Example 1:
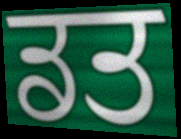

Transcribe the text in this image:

ਡਤ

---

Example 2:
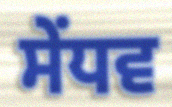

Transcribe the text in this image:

ਸੇਂਧਵ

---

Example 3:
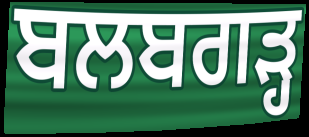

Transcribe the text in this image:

ਬਲਬਗੜ੍ਹ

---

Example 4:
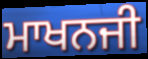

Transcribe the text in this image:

ਮਾਖਨਜੀ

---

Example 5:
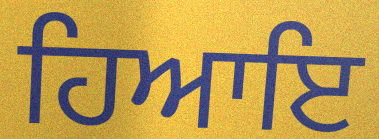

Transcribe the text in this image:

ਹਿਆਇ